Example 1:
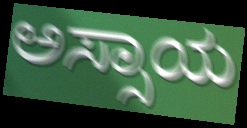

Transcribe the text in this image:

ಅಸ್ಸಾಯ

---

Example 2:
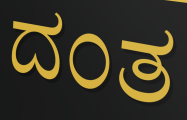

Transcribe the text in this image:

ದಂತ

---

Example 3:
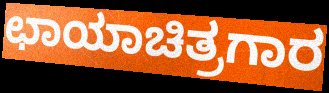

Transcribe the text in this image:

ಛಾಯಾಚಿತ್ರಗಾರ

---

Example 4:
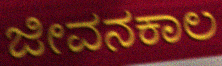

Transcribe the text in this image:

ಜೀವನಕಾಲ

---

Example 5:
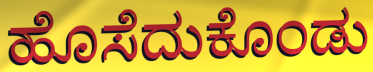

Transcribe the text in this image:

ಹೊಸೆದುಕೊಂಡು